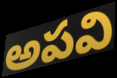
అపవి